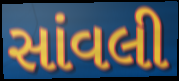
સાંવલી